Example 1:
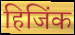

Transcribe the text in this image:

हिजिंक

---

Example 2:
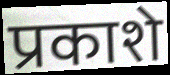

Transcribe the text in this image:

प्रकाशे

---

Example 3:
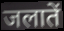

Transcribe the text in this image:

जलातें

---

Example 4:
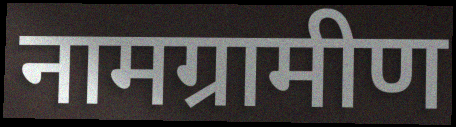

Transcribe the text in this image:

नामग्रामीण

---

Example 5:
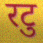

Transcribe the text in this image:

रटु